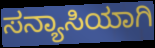
ಸನ್ಯಾಸಿಯಾಗಿ